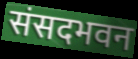
संसदभवन